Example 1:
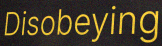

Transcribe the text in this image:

Disobeying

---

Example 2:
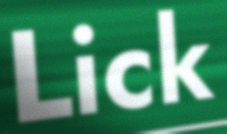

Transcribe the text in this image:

Lick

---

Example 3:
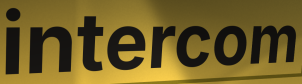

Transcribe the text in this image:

intercom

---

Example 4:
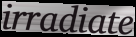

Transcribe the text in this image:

irradiate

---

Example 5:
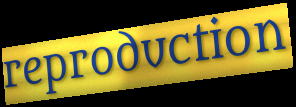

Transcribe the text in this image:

reproduction